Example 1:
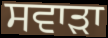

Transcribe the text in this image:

ਸਵਾੜਾ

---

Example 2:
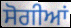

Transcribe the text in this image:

ਸੋਗੀਆਂ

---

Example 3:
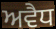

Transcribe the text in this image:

ਅਵੈਧ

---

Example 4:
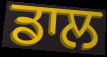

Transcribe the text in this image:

ਡਾਲ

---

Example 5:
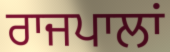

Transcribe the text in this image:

ਰਾਜਪਾਲਾਂ